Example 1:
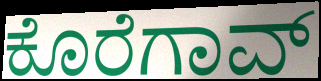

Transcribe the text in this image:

ಕೊರೆಗಾವ್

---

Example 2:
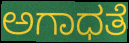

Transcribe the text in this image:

ಅಗಾಧತೆ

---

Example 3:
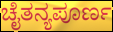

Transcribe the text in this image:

ಚೈತನ್ಯಪೂರ್ಣ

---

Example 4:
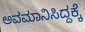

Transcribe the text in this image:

ಅವಮಾನಿಸಿದ್ದಕ್ಕೆ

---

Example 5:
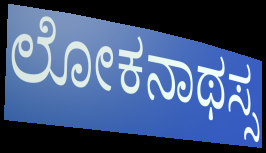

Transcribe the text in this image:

ಲೋಕನಾಥಸ್ಸ